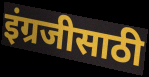
इंग्रजीसाठी